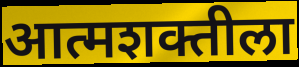
आत्मशक्तीला